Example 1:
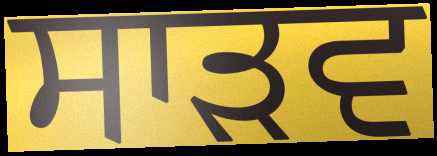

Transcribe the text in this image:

ਸਾੜਵ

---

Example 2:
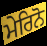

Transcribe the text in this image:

ਮੇਰਿਨੋ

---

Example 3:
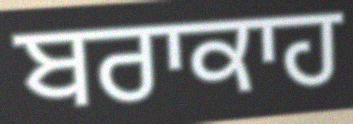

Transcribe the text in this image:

ਬਰਾਕਾਹ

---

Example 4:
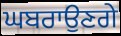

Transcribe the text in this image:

ਘਬਰਾਉਣਗੇ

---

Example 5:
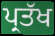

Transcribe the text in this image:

ਪ੍ਰਤੱਖ